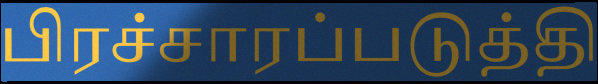
பிரச்சாரப்படுத்தி